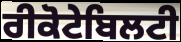
ਰੀਕੋਟੇਬਿਲਟੀ